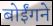
बोईंगने